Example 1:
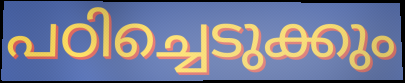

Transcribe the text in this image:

പഠിച്ചെടുക്കും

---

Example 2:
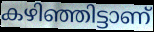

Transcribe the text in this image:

കഴിഞ്ഞിട്ടാണ്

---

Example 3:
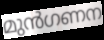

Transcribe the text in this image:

മുൻഗണന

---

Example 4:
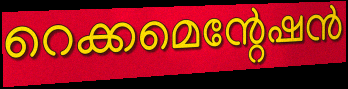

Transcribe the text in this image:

റെക്കമെന്റേഷൻ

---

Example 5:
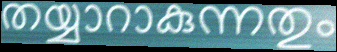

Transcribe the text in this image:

തയ്യാറാകുന്നതും